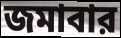
জমাবার